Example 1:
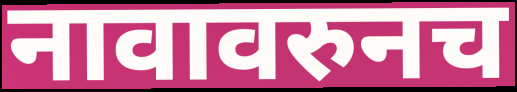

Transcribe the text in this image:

नावावरुनच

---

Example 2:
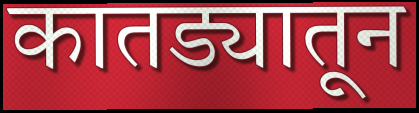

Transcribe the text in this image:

कातड्यातून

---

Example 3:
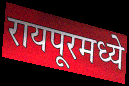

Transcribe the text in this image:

रायपूरमध्ये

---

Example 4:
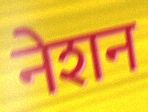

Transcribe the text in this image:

नेशन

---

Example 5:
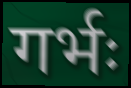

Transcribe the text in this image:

गर्भः